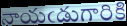
నాయఁడుగారికి